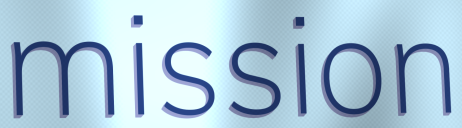
mission